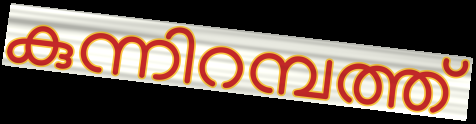
കുന്നിറമ്പത്ത്